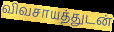
விவசாயத்துடன்